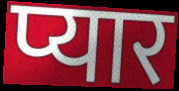
प्‍यार